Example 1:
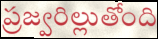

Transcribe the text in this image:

ప్రజ్వరిల్లుతోంది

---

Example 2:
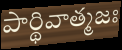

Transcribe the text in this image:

పార్థివాత్మజః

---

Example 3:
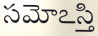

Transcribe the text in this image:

సమోఽస్తి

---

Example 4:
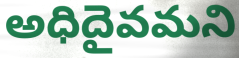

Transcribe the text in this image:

అధిదైవమని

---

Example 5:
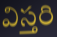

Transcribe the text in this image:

విస్తరి